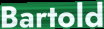
Bartold